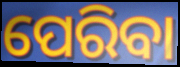
ପେରିବା